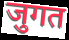
जुगत